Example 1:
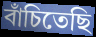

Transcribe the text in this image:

বাঁচিতেছি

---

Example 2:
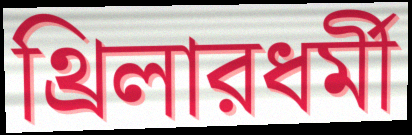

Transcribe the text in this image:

থ্রিলারধর্মী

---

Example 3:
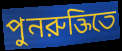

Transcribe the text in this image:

পুনরুক্তিতে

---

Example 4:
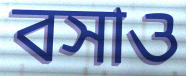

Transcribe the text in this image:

বসাও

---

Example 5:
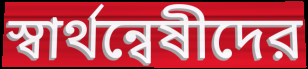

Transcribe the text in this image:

স্বার্থন্বেষীদের